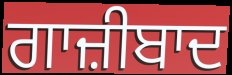
ਗਾਜ਼ੀਬਾਦ